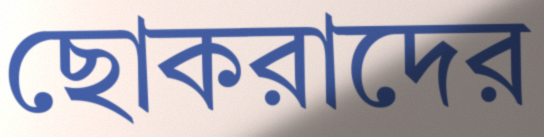
ছোকরাদের